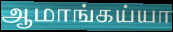
ஆமாங்கய்யா